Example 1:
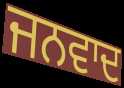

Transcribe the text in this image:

ਜਨਵਾਦ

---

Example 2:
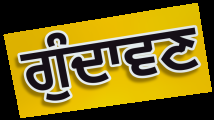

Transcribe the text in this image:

ਗੁੰਦਾਵਣ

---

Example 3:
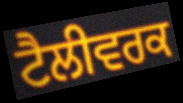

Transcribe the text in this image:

ਟੈਲੀਵਰਕ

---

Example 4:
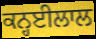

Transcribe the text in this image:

ਕਨ੍ਹਈਲਾਲ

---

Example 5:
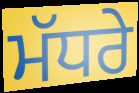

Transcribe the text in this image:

ਮੱਧਰੇ